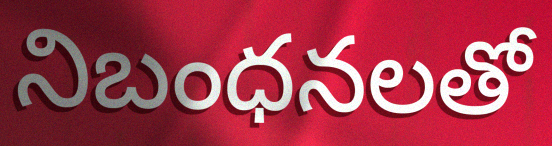
నిబంధనలతో